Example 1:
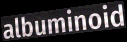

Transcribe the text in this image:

albuminoid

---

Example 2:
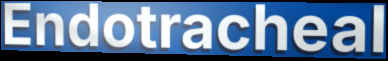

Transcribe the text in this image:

Endotracheal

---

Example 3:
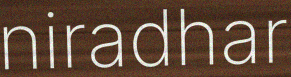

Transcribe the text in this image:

niradhar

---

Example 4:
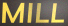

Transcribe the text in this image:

MILL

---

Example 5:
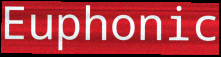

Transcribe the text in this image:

Euphonic